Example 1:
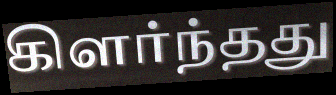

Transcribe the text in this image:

கிளர்ந்தது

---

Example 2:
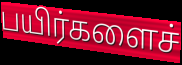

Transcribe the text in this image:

பயிர்களைச்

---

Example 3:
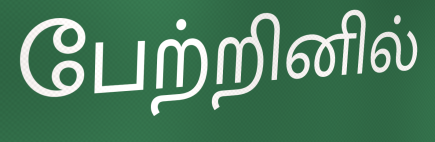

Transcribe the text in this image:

பேற்றினில்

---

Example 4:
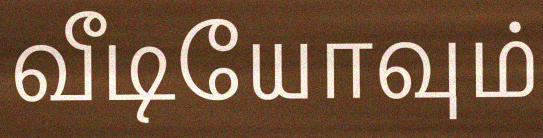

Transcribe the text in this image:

வீடியோவும்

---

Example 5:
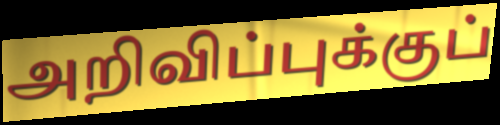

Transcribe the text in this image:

அறிவிப்புக்குப்